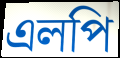
এলপি